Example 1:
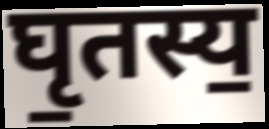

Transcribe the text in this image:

घृ॒तस्य॒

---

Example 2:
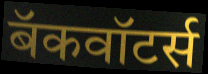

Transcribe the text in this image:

बॅकवॉटर्स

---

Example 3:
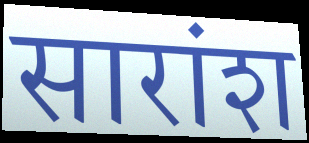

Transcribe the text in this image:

सारांश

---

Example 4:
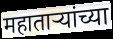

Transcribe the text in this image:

महाताऱ्यांच्या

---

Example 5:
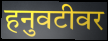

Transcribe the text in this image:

हनुवटीवर